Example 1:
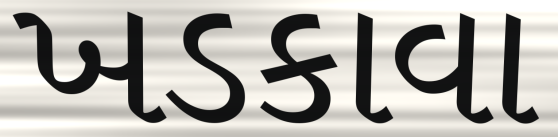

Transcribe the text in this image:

ખડકાવા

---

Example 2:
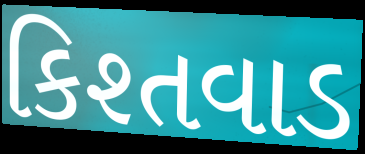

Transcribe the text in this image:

કિશ્તવાડ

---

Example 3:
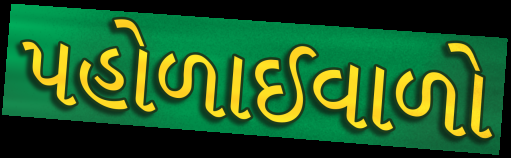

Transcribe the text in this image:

પહોળાઈવાળો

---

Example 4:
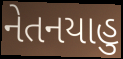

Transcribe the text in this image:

નેતનયાહુ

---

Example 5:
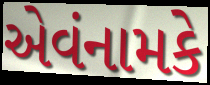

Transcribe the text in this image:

એવંનામકે